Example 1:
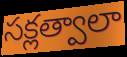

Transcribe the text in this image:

సక్లత్వాలా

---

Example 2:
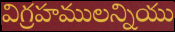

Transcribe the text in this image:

విగ్రహములన్నియు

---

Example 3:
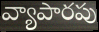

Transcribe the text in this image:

వ్యాపారపు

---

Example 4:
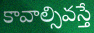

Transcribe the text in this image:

కావాల్సివస్తే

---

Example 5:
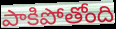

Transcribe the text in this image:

పాకిపోతోంది